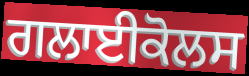
ਗਲਾਈਕੋਲਸ